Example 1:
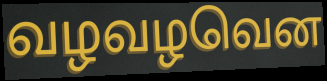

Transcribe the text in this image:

வழவழவென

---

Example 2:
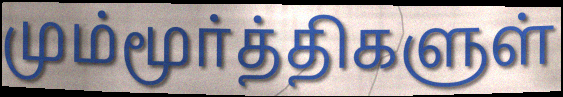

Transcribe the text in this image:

மும்மூர்த்திகளுள்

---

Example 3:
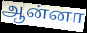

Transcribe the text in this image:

ஆன்னா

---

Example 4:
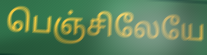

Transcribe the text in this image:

பெஞ்சிலேயே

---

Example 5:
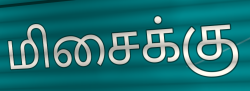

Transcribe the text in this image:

மிசைக்கு